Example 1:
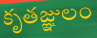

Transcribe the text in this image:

కృతజ్ఞులం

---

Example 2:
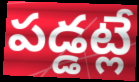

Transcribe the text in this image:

పడ్డట్లే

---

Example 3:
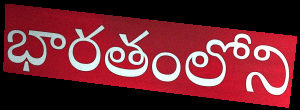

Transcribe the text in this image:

భారతంలోని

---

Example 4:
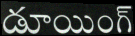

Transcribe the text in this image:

డూయింగ్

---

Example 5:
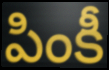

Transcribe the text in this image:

పింకీ